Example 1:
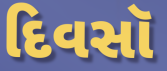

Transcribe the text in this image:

દિવસૉ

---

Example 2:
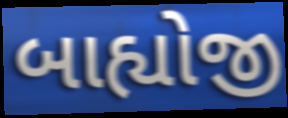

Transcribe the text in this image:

બાહ્યોજી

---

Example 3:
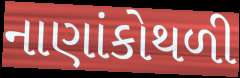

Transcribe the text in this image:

નાણાંકોથળી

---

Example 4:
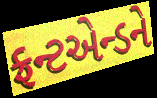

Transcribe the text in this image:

ફ્રન્ટએન્ડને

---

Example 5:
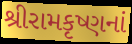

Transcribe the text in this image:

શ્રીરામકૃષ્ણનાં